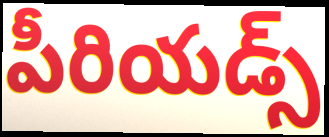
పీరియడ్స్